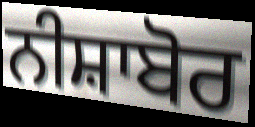
ਨੀਸ਼ਾਬੋਰ